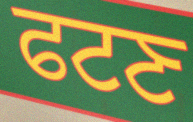
ਫਟਣ